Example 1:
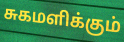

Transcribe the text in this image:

சுகமளிக்கும்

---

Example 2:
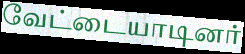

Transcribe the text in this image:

வேட்டையாடினர்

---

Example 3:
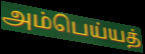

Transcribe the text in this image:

அம்பெய்யத்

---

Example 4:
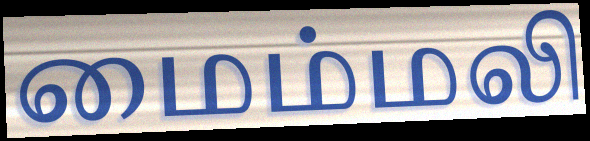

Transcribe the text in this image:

மைம்மலி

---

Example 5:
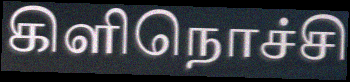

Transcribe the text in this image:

கிளிநொச்சி